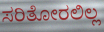
ಸರಿತೋರಲಿಲ್ಲ